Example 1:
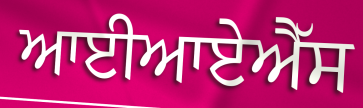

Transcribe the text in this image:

ਆਈਆਏਐੱਸ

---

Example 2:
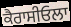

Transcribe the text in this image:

ਕੈਰਾਸੀਓਲਾ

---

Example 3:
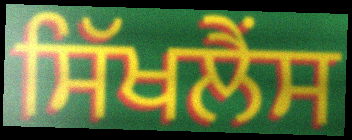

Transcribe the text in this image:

ਸਿੱਖਲੈਂਸ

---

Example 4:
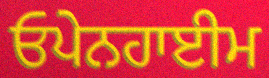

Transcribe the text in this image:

ਓਪੇਨਹਾਈਮ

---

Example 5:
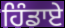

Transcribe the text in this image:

ਹਿੰਡਾਏ